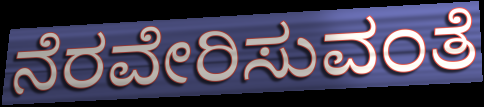
ನೆರವೇರಿಸುವಂತೆ